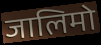
जालिमो